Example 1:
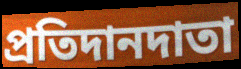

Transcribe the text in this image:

প্রতিদানদাতা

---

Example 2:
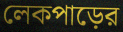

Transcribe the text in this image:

লেকপাড়ের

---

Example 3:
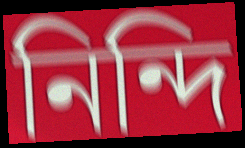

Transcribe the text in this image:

নিন্দি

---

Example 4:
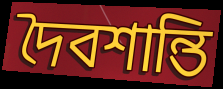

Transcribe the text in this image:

দৈবশান্তি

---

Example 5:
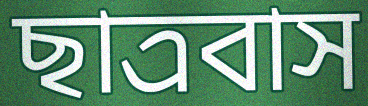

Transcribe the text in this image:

ছাত্রবাস